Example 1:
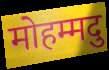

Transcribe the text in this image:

मोहम्मदु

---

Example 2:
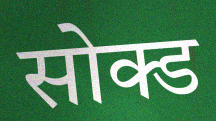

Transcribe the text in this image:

सोक्ड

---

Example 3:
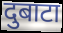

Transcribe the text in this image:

दुबाटा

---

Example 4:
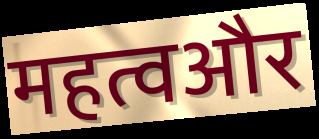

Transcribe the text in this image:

महत्वऔर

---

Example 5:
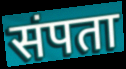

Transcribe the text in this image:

संपता